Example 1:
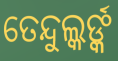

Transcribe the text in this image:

ତେନ୍ଦୁଲ୍କର୍ଙ୍କ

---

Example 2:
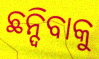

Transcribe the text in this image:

ଛନ୍ଦିବାକୁ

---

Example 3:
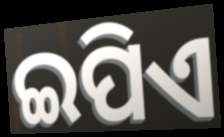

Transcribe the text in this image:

ଇପିଏ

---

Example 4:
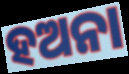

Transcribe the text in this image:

ହଅନା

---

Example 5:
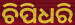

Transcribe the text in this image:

ଚିପିଧରି